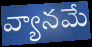
వ్యానమే